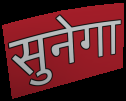
सुनेगा